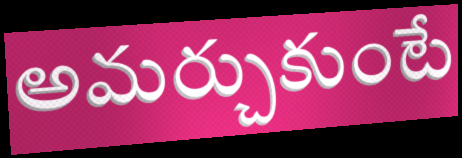
అమర్చుకుంటే